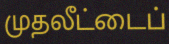
முதலீட்டைப்